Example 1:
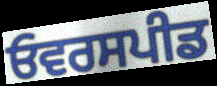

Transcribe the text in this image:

ਓਵਰਸਪੀਡ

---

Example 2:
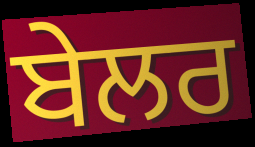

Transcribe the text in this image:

ਬੇਲਰ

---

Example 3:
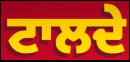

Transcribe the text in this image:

ਟਾਲਦੇ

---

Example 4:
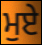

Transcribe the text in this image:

ਮੁਏ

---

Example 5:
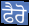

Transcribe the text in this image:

ਫੈਰੋ